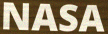
NASA